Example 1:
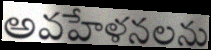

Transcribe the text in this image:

అవహేళనలను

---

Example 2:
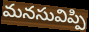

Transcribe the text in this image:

మనసువిప్పి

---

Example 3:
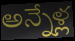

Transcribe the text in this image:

అన్నేళ్ల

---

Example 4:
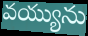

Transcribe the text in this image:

వయ్యును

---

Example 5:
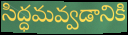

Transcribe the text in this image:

సిద్ధమవ్వడానికి